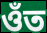
ওঁত